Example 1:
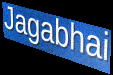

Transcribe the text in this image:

Jagabhai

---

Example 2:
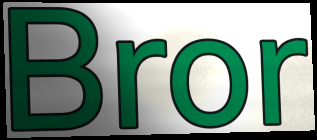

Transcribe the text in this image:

Bror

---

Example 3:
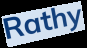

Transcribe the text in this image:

Rathy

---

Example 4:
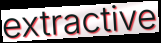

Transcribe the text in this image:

extractive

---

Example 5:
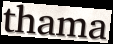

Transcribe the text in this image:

thama